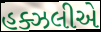
હક્ઝલીએ